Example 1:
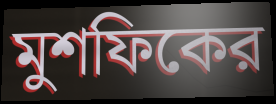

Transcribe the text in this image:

মুশফিকের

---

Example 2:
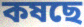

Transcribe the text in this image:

কষছে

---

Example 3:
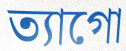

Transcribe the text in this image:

ত্যাগো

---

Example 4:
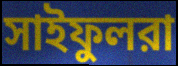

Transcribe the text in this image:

সাইফুলরা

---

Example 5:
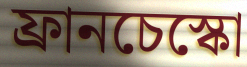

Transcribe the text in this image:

ফ্রানচেস্কো